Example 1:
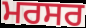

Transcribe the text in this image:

ਮਰਸਰ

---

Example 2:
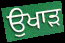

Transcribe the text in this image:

ਉਖਾੜ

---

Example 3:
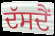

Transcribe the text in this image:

ਦੱਸਦੈਂ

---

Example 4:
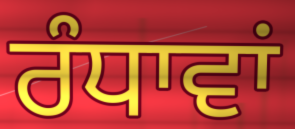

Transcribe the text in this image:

ਰੰਧਾਵਾਂ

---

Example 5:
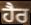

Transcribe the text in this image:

ਹੈਰ